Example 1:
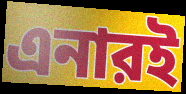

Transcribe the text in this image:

এনারই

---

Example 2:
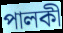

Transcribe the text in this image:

পালকী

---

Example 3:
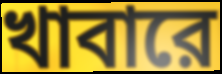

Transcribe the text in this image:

খাবারে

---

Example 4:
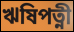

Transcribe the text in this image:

ঋষিপত্নী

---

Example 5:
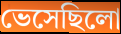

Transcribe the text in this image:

ভেসেছিলো